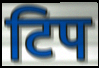
टिप